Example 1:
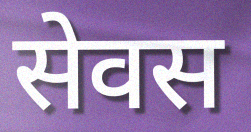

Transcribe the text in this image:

सेवस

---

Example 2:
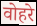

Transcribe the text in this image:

वोहरे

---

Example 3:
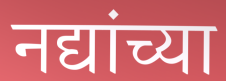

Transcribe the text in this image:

नद्यांच्या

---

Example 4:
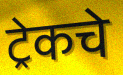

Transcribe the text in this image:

ट्रेकचे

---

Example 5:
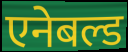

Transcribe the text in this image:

एनेबल्ड